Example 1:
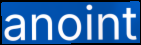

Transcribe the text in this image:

anoint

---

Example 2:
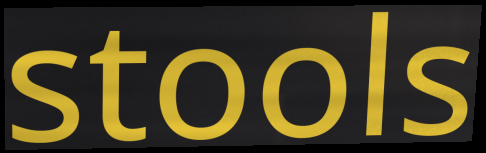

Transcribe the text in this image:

stools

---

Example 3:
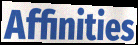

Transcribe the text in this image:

Affinities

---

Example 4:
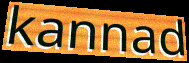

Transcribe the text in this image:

kannad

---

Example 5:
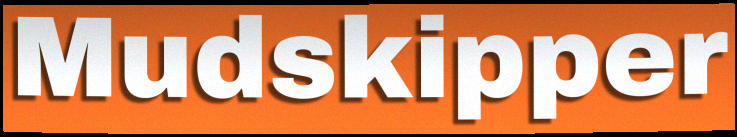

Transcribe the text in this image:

Mudskipper